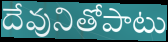
దేవునితోపాటు